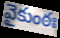
వైకుంఠః